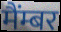
मैंम्बर